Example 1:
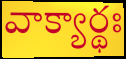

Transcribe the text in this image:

వాక్యార్థః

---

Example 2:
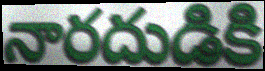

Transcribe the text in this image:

నారదుడికి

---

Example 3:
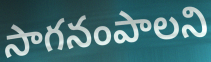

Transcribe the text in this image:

సాగనంపాలని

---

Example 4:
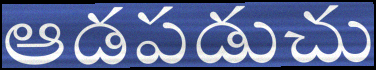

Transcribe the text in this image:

ఆడపడుచు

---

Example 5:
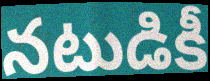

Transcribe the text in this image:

నటుడికీ